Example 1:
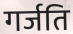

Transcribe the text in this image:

गर्जति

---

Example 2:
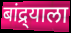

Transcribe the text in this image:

बांद्र्याला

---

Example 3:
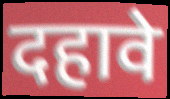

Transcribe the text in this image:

दहावे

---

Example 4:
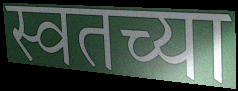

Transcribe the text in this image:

स्वतच्या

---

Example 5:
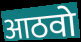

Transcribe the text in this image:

आठवो